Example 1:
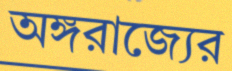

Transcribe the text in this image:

অঙ্গরাজ্যের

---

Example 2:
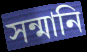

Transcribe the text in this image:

সন্মানি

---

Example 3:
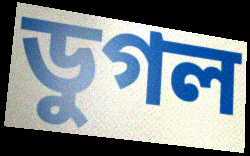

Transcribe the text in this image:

ডুগল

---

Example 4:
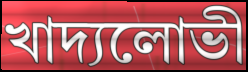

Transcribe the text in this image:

খাদ্যলোভী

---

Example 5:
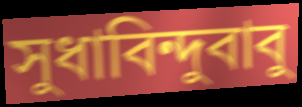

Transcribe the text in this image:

সুধাবিন্দুবাবু